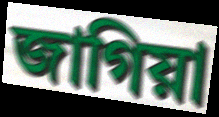
জাগিয়া